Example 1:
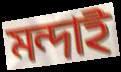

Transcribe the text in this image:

মন্দাই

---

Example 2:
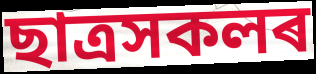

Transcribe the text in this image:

ছাত্ৰসকলৰ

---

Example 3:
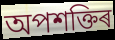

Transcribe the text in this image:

অপশক্তিৰ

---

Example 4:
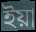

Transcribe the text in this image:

ইয়া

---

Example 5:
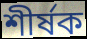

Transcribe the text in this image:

শীৰ্ষক